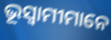
ଭୂସ୍ୱାମୀମାନେ